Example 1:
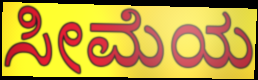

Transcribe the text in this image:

ಸೀಮೆಯ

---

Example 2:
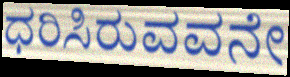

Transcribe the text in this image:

ಧರಿಸಿರುವವನೇ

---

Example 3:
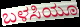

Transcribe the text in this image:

ಬಳಸಿಯೂ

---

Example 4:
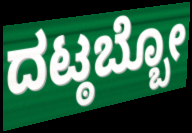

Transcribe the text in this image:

ದಟ್ಠಬ್ಬೋ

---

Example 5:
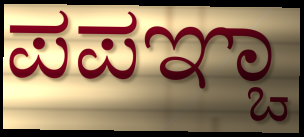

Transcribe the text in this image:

ಪಪಞ್ಚಾ